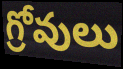
గ్రోవులు